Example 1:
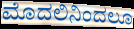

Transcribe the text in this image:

ಮೊದಲಿನಿಂದಲೂ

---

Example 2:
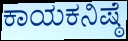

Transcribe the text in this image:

ಕಾಯಕನಿಷ್ಠೆ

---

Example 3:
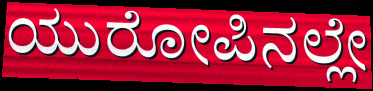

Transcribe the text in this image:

ಯುರೋಪಿನಲ್ಲೇ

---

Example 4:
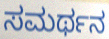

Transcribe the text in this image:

ಸಮರ್ಥನ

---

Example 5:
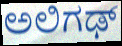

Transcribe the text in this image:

ಅಲಿಗಢ್